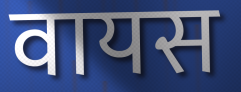
वायस